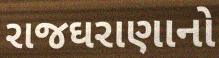
રાજઘરાણાનો